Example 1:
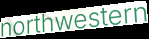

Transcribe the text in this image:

northwestern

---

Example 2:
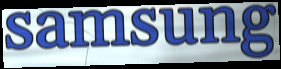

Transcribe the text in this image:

samsung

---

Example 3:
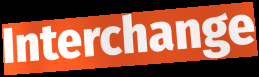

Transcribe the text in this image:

Interchange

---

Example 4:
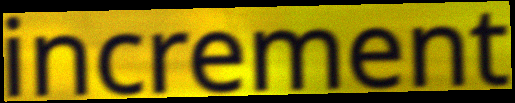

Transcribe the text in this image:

increment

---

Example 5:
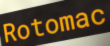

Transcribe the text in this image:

Rotomac